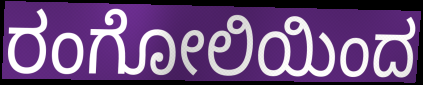
ರಂಗೋಲಿಯಿಂದ